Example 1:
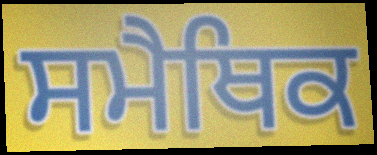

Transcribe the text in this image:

ਸਮੈਥਿਕ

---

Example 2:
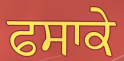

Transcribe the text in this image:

ਫਸਾਕੇ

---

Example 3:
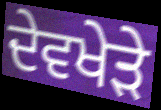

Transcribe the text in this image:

ਦੇਵਖੇੜੇ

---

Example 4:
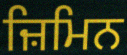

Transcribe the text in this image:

ਜ਼ਿਮਿਨ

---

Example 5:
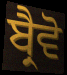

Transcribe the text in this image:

ਬ੍ਰੈਵੋ